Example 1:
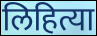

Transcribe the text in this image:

लिहित्या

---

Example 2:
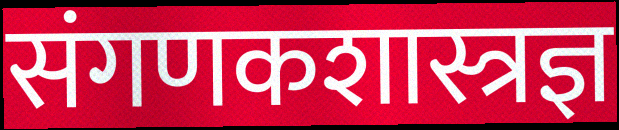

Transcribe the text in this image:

संगणकशास्त्रज्ञ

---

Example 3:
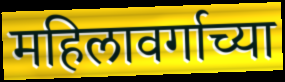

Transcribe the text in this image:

महिलावर्गाच्या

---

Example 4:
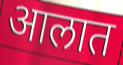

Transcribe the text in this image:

आलात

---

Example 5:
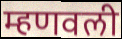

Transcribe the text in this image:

म्हणवली